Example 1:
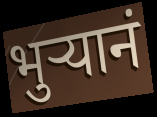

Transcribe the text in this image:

भुऱ्यानं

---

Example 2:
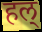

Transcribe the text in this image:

हल्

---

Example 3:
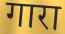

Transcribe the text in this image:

गारा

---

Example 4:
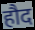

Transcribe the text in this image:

हौद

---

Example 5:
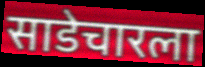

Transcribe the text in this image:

साडेचारला